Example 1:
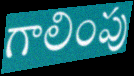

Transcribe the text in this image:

గాలింపు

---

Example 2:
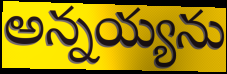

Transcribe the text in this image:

అన్నయ్యను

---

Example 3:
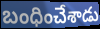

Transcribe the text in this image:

బంధించేశాడు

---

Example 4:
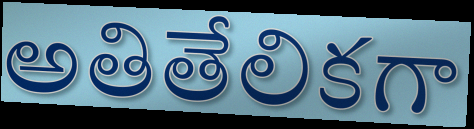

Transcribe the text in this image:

అతితేలికగా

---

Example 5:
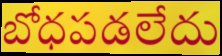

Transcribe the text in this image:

బోధపడలేదు